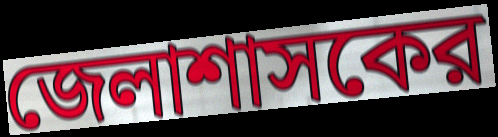
জেলাশাসকের